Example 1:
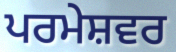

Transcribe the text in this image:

ਪਰਮੇਸ਼ਵਰ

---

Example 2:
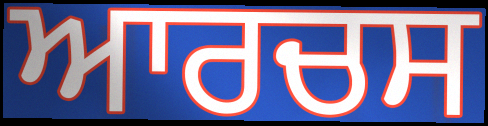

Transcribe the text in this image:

ਆਰਚਸ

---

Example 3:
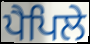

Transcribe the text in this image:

ਪੈਪਿਲੇ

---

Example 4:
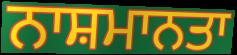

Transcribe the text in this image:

ਨਾਸ਼ਮਾਨਤਾ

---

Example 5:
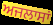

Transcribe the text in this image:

ਅਜਲਾਸਾਂ